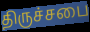
திருச்சபை